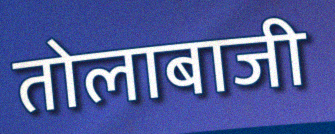
तोलाबाजी